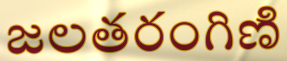
జలతరంగిణి